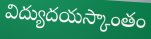
విద్యుదయస్కాంతం